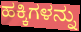
ಹಕ್ಕಿಗಳನ್ನು